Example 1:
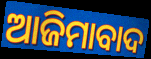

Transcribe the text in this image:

ଆଜିମାବାଦ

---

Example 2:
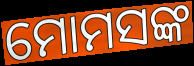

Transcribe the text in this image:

ମୋମସଙ୍କ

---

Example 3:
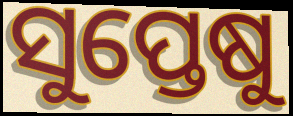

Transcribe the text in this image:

ସୁପ୍ତେଷୁ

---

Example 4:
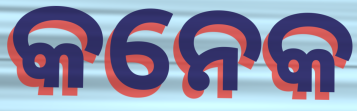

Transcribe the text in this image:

କନେକ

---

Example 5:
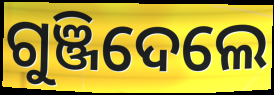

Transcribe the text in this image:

ଗୁଞ୍ଜିଦେଲେ